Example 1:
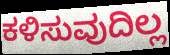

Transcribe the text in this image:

ಕಳಿಸುವುದಿಲ್ಲ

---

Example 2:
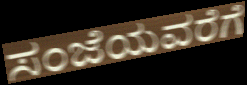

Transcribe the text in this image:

ಸಂಜೆಯವರೆಗೆ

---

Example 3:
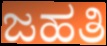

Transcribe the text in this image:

ಜಹತಿ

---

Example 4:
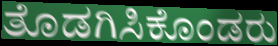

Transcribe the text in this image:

ತೊಡಗಿಸಿಕೊಂಡರು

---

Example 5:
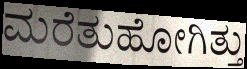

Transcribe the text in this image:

ಮರೆತುಹೋಗಿತ್ತು